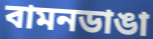
বামনডাঙা